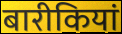
बारीकियां